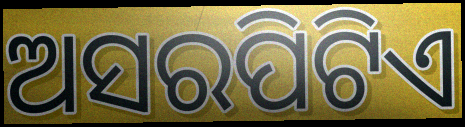
ଅସରପିଟିଏ